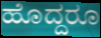
ಹೊದ್ದರೂ